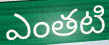
ఎంతటి